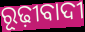
ରୂଢ଼ୀବାଦୀ